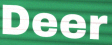
Deer